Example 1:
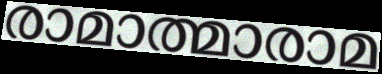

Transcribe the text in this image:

രാമാത്മാരാമ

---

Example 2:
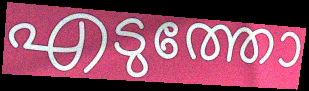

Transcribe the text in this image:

എടുത്തോ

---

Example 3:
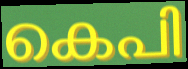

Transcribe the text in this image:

കെപി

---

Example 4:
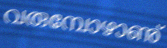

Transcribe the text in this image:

വരുമ്പോഴാണു്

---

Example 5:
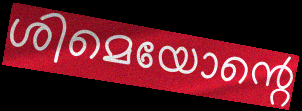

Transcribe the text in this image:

ശിമെയോന്റെ